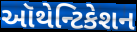
ઑથેન્ટિકેશન